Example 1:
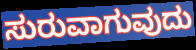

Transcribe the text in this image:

ಸುರುವಾಗುವುದು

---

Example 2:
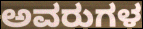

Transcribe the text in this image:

ಅವರುಗಳ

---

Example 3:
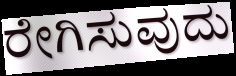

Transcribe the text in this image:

ರೇಗಿಸುವುದು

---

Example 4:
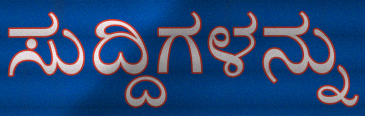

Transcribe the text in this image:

ಸುದ್ದಿಗಳನ್ನು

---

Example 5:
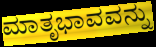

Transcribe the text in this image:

ಮಾತೃಭಾವವನ್ನು